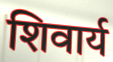
शिवार्य